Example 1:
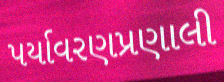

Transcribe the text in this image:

પર્યાવરણપ્રણાલી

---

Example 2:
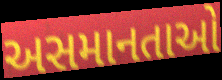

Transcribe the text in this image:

અસમાનતાઓ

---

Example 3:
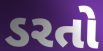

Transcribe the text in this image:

ડરતો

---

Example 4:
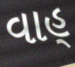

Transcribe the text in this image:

વાહ્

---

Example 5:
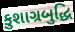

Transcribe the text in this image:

કુશાગ્રબુદ્ધિ